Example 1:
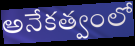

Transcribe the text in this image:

అనేకత్వంలో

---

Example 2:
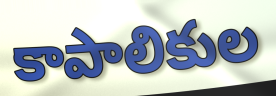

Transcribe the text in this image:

కాపాలికుల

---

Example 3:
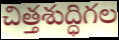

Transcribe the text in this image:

చిత్తశుద్ధిగల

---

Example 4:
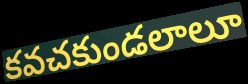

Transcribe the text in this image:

కవచకుండలాలూ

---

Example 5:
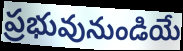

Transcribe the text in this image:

ప్రభువునుండియే